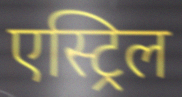
एस्ट्रिल